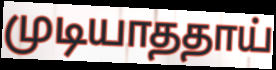
முடியாததாய்